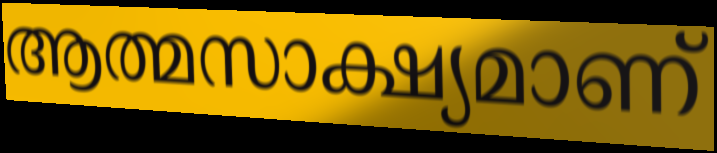
ആത്മസാക്ഷ്യമാണ്